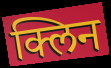
क्लिन